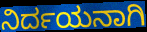
ನಿರ್ದಯನಾಗಿ